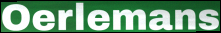
Oerlemans